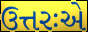
ઉત્તરઃએ